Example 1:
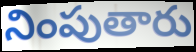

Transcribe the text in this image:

నింపుతారు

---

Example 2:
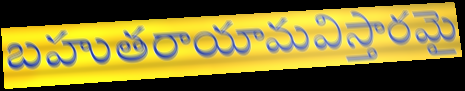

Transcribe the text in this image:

బహుతరాయామవిస్తారమై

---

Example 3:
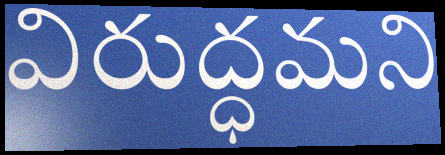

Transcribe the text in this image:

విరుద్ధమని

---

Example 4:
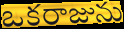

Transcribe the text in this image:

ఒకరాజును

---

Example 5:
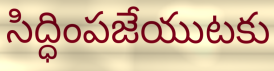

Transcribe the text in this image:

సిద్ధింపజేయుటకు